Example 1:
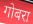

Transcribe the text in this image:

गोबरा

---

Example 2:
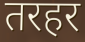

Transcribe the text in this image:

तरहर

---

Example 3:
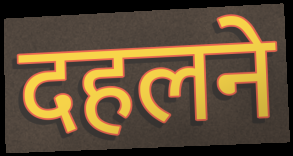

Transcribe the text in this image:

दहलने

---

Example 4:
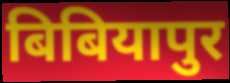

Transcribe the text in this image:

बिबियापुर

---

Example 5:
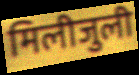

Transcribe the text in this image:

मिलीजुली